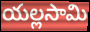
యల్లసామి